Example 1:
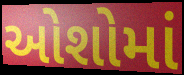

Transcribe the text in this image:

ઓશોમાં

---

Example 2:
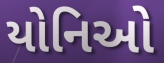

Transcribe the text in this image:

યોનિઓ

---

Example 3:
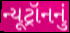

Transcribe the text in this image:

ન્યૂટ્રૉનનું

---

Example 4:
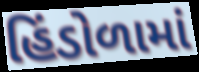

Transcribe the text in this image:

હિંડોળામાં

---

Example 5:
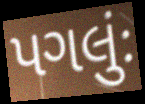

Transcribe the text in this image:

પગલુંઃ